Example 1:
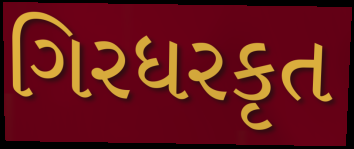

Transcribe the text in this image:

ગિરધરકૃત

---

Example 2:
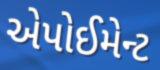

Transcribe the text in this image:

એપોઈમેન્ટ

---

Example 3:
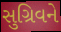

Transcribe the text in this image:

સુગ્રિવને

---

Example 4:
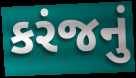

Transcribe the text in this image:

કરંજનું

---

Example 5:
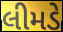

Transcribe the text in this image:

લીમડે